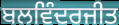
ਬਲਵਿੰਦਰਜੀਤ